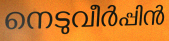
നെടുവീർപ്പിൻ